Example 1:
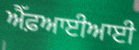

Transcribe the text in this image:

ਐੱਫ਼ਆਈਆਈ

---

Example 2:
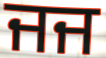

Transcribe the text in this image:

ਜਜ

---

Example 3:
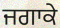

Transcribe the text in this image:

ਜਗਾਕੇ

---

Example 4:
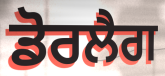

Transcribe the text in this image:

ਡੋਰਲੈਗ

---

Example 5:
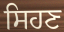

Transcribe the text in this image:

ਸਿਹਣ